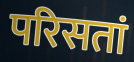
परिसतां